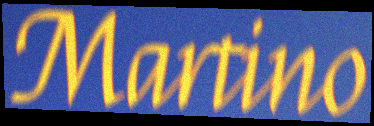
Martino